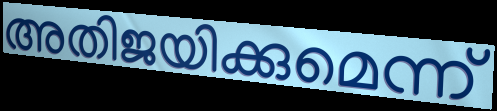
അതിജയിക്കുമെന്ന്